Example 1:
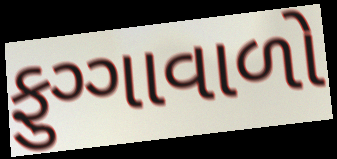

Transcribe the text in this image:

ફુગ્ગાવાળો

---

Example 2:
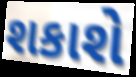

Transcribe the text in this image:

શકાશે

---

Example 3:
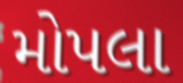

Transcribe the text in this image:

મોપલા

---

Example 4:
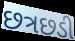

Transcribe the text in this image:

છત્રછડી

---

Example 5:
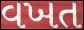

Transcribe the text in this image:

વખત